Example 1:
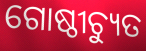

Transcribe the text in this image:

ଗୋଷ୍ଠୀଚ୍ୟୁତ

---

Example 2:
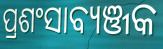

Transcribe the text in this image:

ପ୍ରଶଂସାବ୍ୟଞ୍ଜକ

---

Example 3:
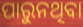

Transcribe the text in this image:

ପାରୁନଥିବା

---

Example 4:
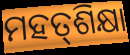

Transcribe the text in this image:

ମହତ୍‌ଶିକ୍ଷା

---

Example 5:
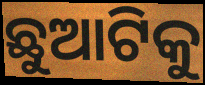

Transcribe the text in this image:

ଛୁଆଟିକୁ